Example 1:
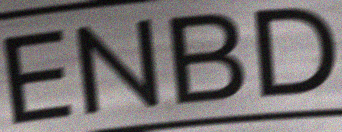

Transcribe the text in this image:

ENBD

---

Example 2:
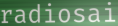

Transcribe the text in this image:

radiosai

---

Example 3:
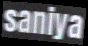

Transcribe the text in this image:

saniya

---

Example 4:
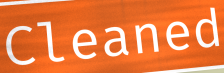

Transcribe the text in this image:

Cleaned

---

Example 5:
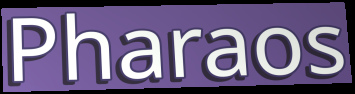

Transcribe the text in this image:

Pharaos